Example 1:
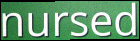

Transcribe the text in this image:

nursed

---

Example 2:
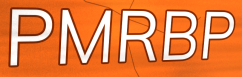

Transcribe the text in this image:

PMRBP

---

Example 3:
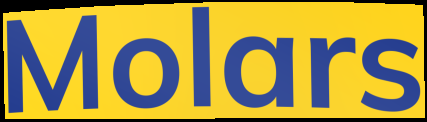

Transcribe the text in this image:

Molars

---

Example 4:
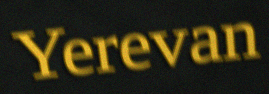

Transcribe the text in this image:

Yerevan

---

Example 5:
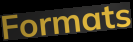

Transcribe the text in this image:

Formats